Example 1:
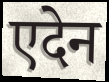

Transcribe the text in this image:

एदेन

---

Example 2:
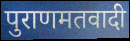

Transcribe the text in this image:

पुराणमतवादी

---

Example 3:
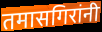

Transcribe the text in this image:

तमासगिरांनी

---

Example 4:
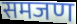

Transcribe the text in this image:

समजण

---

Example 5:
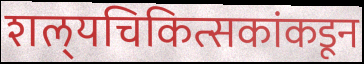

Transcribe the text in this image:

शल्यचिकित्सकांकडून